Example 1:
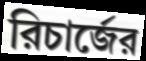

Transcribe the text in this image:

রিচার্জের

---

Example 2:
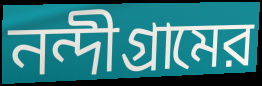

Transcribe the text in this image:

নন্দীগ্রামের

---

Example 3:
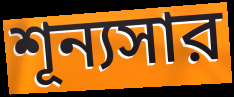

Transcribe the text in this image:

শূন্যসার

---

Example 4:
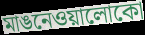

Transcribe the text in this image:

মাঙনেওয়ালোকো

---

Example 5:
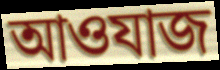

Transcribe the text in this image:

আওযাজ